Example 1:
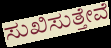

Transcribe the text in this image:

ಸುಖಿಸುತ್ತೇವೆ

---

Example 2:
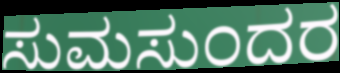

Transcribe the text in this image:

ಸುಮಸುಂದರ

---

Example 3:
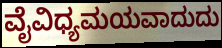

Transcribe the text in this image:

ವೈವಿಧ್ಯಮಯವಾದುದು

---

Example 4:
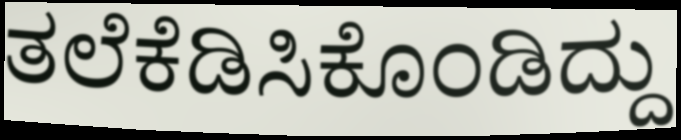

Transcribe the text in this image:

ತಲೆಕೆಡಿಸಿಕೊಂಡಿದ್ದು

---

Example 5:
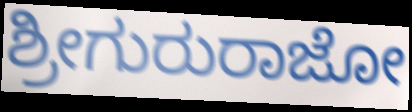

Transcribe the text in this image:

ಶ್ರೀಗುರುರಾಜೋ